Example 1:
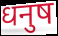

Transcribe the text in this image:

धनुष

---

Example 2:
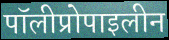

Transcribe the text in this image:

पॉलीप्रोपाइलीन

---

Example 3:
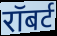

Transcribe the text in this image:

रॉबर्ट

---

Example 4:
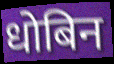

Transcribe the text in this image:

धोबिन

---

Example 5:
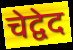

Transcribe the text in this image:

चेद्वेद